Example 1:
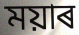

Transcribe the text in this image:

ময়াৰ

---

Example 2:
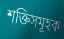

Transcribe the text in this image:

শক্তিসমূহক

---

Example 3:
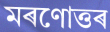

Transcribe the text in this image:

মৰণোত্তৰ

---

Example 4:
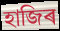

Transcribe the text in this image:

হাজিৰ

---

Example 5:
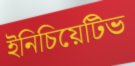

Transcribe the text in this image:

ইনিচিয়েটিভ